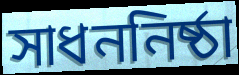
সাধননিষ্ঠা